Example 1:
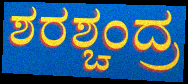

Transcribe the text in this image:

ಶರಶ್ಚಂದ್ರ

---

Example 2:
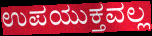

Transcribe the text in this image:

ಉಪಯುಕ್ತವಲ್ಲ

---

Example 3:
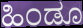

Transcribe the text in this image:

ಹಿಂಡೂ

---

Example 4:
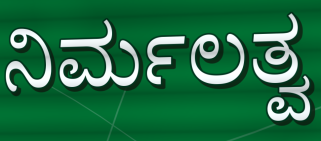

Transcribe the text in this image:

ನಿರ್ಮಲತ್ವ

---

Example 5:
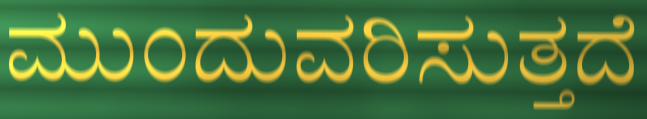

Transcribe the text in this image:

ಮುಂದುವರಿಸುತ್ತದೆ